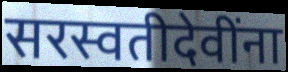
सरस्वतीदेवींना